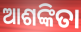
ଆଶଙ୍କିତା